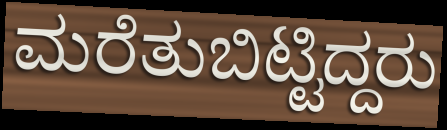
ಮರೆತುಬಿಟ್ಟಿದ್ದರು